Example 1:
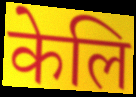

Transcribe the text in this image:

केलि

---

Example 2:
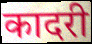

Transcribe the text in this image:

कादरी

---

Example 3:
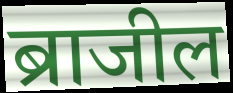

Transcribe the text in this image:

ब्राजील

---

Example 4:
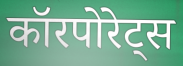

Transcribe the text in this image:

कॉरपोरेट्स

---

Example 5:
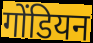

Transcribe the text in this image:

गोंडियन